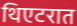
थिएटरात